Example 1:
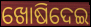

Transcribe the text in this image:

ଖୋଷିଦେଇ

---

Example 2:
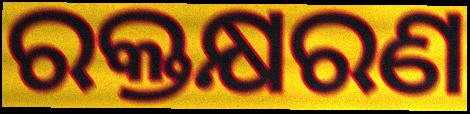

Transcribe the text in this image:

ରକ୍ତକ୍ଷରଣ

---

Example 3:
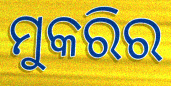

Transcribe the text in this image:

ମୁକରିର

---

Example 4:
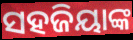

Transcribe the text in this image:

ସହଜିୟାଙ୍କ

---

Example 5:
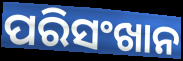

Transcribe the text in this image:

ପରିସଂଖାନ